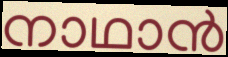
നാഥാൻ